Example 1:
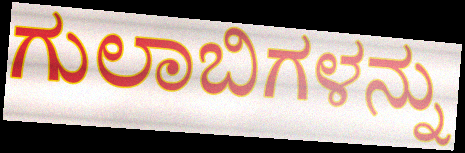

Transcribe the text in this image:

ಗುಲಾಬಿಗಳನ್ನು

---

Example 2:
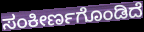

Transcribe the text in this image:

ಸಂಕೀರ್ಣಗೊಂಡಿದೆ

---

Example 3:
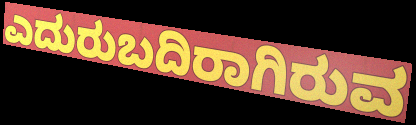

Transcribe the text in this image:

ಎದುರುಬದಿರಾಗಿರುವ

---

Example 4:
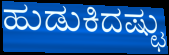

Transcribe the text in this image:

ಹುಡುಕಿದಷ್ಟು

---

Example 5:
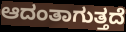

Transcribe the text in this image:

ಆದಂತಾಗುತ್ತದೆ